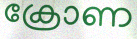
ക്രോണ